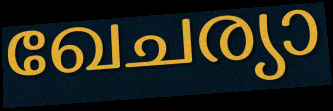
ഖേചര്യാ